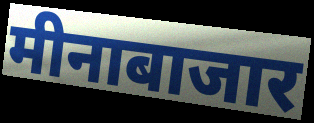
मीनाबाजार